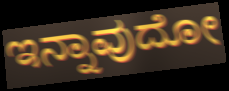
ಇನ್ನಾವುದೋ